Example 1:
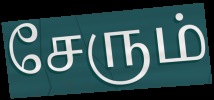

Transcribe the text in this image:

சேரும்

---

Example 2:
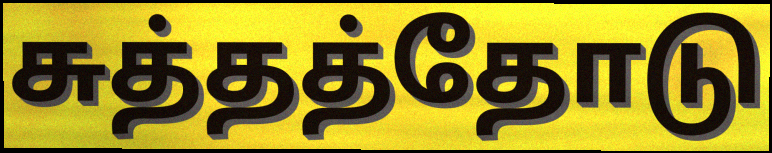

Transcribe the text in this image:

சுத்தத்தோடு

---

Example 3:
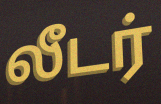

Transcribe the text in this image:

லீடர்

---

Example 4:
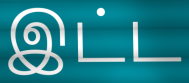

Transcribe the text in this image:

இட்ட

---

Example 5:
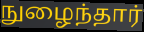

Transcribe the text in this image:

நுழைந்தார்